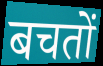
बचतों